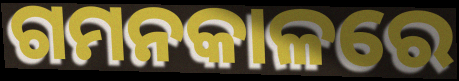
ଗମନକାଳରେ